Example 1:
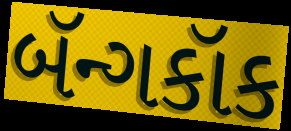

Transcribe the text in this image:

બૅન્ગકૉક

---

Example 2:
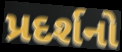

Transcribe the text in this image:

પ્રદર્શનો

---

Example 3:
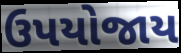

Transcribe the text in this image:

ઉપયોજાય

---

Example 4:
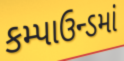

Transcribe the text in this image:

કમ્પાઉન્ડમાં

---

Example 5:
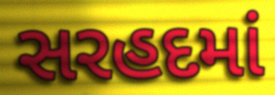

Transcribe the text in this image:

સરહદમાં